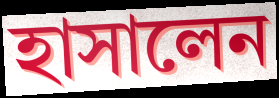
হাসালেন